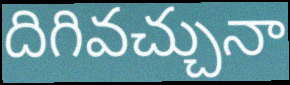
దిగివచ్చునా